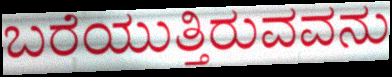
ಬರೆಯುತ್ತಿರುವವನು